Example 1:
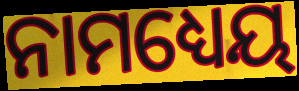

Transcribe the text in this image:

ନାମଧ୍ୟେୟ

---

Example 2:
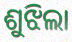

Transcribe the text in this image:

ଶୁଝିଲା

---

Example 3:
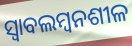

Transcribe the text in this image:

ସ୍ୱାବଲମ୍ୱନଶୀଳ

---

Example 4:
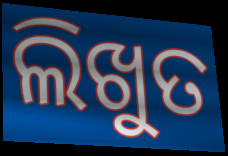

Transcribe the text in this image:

ଲିଖୁତ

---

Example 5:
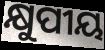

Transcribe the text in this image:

କ୍ଷୁପୀୟ